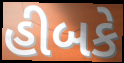
હીબકે